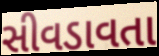
સીવડાવતા